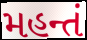
મહન્તં